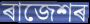
ৰাজেশৰ